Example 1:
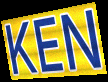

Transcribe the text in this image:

KEN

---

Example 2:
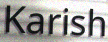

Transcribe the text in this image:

Karish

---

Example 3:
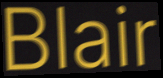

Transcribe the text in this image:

Blair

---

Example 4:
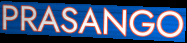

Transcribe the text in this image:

PRASANGO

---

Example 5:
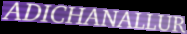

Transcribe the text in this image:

ADICHANALLUR